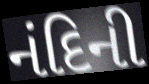
નંદિની